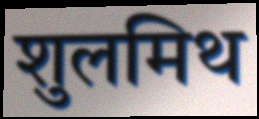
शुलमिथ